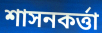
শাসনকৰ্ত্তা